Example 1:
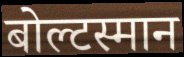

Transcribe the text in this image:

बोल्टस्मान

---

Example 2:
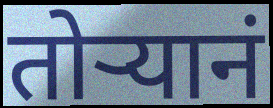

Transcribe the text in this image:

तोऱ्यानं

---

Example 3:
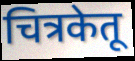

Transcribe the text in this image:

चित्रकेतू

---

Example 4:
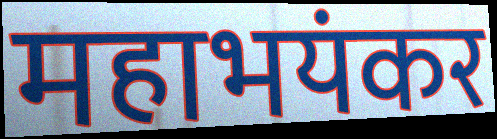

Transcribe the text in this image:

महाभयंकर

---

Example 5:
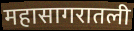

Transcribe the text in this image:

महासागरातली